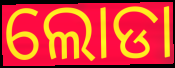
ଲୋଡା